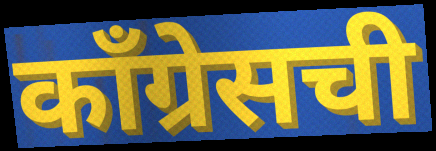
काँग्रेसची